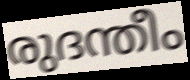
രുദന്തീം